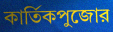
কার্তিকপুজোর